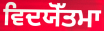
ਵਿਦਯੋੱਤਮਾ